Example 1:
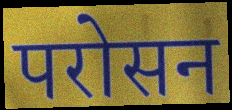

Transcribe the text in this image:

परोसन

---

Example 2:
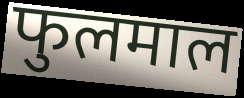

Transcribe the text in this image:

फुलमाल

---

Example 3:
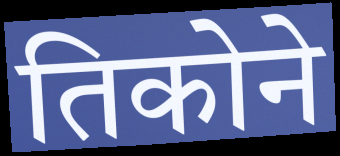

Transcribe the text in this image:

तिकोने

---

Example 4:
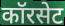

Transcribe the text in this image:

कॉरसेट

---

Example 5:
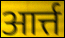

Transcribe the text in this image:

आर्त्त